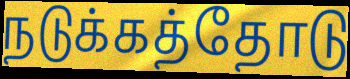
நடுக்கத்தோடு